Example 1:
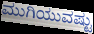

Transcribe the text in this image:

ಮುಗಿಯುವಷ್ಟು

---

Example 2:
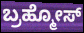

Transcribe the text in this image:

ಬ್ರಹ್ಮೋಸ್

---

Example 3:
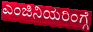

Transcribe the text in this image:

ಎಂಜಿನಿಯರಿಂಗ್ಗೆ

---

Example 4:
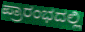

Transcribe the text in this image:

ಪ್ರಾರಂಭದಲ್ಲಿ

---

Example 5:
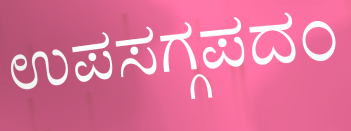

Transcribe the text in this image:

ಉಪಸಗ್ಗಪದಂ